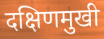
दक्षिणमुखी